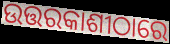
ଉତ୍ତରକାଶୀଠାରେ